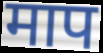
माप